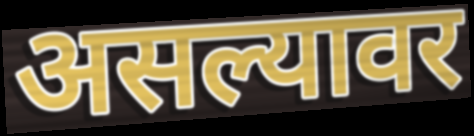
असल्यावर